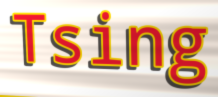
Tsing